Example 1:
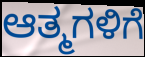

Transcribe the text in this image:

ಆತ್ಮಗಳಿಗೆ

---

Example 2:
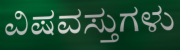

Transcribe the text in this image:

ವಿಷವಸ್ತುಗಳು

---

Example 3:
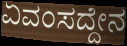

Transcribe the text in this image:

ಏವಂಸದ್ದೇನ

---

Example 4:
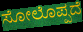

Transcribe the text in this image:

ಸೋಲೊಪ್ಪದೆ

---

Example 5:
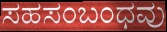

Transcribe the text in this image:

ಸಹಸಂಬಂಧವು